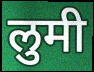
लुमी